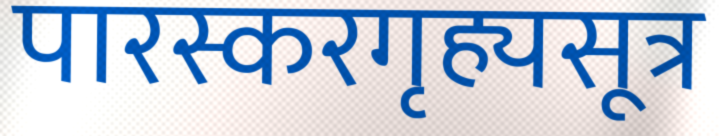
पारस्करगृह्यसूत्र